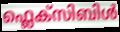
ഫ്ലെക്സിബിൾ